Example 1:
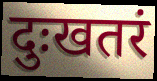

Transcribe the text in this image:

दुःखतरं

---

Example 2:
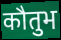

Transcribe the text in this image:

कौतुभ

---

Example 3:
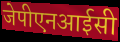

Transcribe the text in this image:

जेपीएनआईसी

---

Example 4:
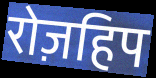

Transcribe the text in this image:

रोज़हिप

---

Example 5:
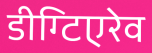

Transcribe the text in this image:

डीग्टिएरेव